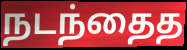
நடந்தைத